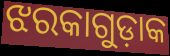
ଝରକାଗୁଡ଼ାକ